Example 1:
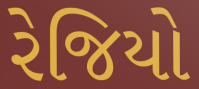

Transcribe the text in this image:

રેજિયો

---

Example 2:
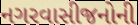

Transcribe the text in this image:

નગરવાસીજનોની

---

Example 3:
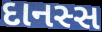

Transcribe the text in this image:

દાનસ્સ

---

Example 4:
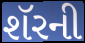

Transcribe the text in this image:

શૅરની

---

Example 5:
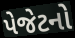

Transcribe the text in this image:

પેજેટનો